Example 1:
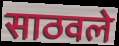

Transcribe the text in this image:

साठवले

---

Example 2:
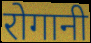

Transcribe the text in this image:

रोगानी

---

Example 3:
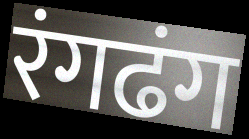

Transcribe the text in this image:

रंगढंग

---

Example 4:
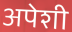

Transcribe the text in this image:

अपेशी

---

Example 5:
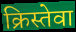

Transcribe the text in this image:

क्रिस्तेवा